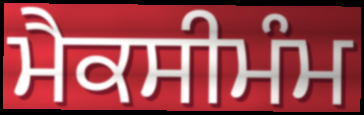
ਮੈਕਸੀਮੰਮ